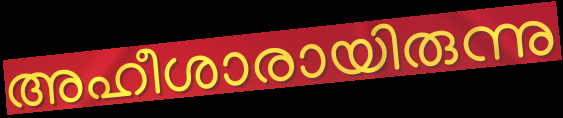
അഹീശാരായിരുന്നു